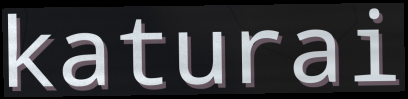
katurai